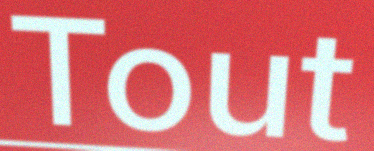
Tout